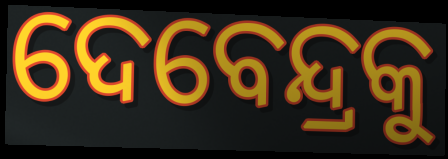
ଦେବେନ୍ଦ୍ରକୁ